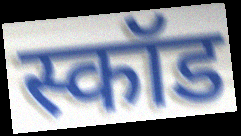
स्कॉड